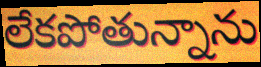
లేకపోతున్నాను